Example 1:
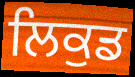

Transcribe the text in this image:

ਲਿਕੁਡ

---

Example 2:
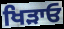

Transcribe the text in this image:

ਖਿੜਾਓ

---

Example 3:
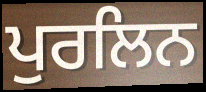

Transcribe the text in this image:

ਪੁਰਲਿਨ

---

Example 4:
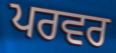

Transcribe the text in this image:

ਪਰਵਰ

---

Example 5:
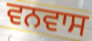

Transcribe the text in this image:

ਵਨਵਾਸ